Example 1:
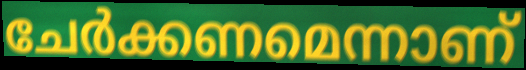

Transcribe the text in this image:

ചേർക്കണമെന്നാണ്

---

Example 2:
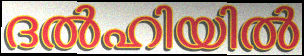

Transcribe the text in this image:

ദൽഹിയിൽ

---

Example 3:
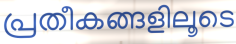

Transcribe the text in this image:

പ്രതീകങ്ങളിലൂടെ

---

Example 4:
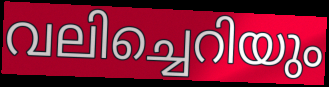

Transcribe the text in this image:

വലിച്ചെറിയും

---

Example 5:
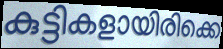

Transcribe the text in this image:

കുട്ടികളായിരിക്കെ